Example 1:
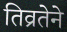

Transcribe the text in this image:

तिव्रतेने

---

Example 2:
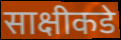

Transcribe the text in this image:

साक्षीकडे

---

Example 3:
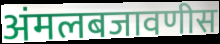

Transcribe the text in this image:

अंमलबजावणीस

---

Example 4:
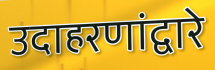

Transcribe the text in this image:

उदाहरणांद्वारे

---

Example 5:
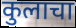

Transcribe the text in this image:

कुलाचा